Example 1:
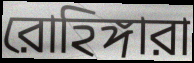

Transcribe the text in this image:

রোহিঙ্গারা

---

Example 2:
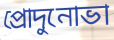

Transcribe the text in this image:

প্রোদুনোভা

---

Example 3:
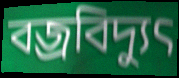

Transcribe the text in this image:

বজ্রবিদ্যুৎ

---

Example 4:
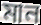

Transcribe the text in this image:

মান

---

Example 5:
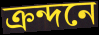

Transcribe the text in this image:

ক্রন্দনে